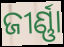
ଜୀର୍ଣ୍ଣା